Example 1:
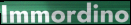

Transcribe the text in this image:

Immordino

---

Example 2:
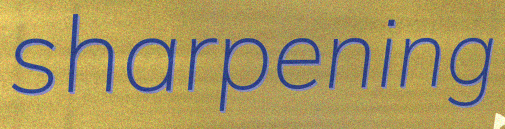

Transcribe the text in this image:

sharpening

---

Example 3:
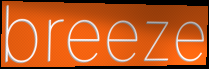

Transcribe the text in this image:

breeze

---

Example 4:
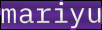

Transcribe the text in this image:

mariyu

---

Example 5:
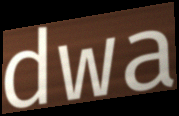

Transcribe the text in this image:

dwa